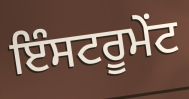
ਇੰਸਟਰੂਮੇਂਟ